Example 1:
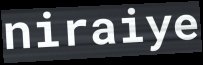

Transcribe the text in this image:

niraiye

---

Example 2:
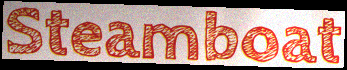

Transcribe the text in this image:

Steamboat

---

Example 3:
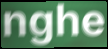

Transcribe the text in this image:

nghe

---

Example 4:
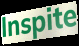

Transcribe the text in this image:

Inspite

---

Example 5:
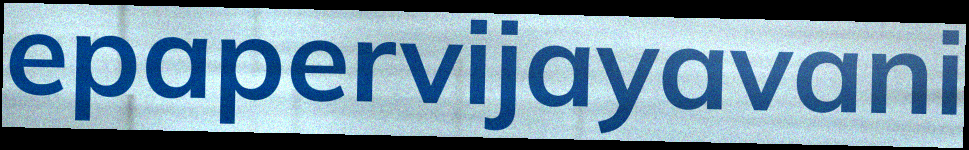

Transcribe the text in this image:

epapervijayavani